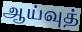
ஆய்வுத்